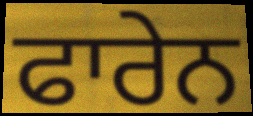
ਫਾਰੇਨ